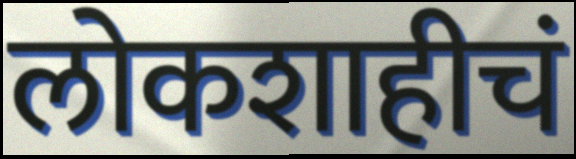
लोकशाहीचं